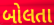
બોલતા